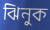
ঝিনুক